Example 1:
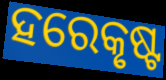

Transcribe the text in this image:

ହରେକୃଷ୍ଟ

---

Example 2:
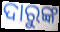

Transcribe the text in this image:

ଦାରୁଙ୍କ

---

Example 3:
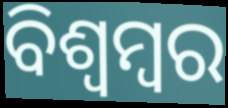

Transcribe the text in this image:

ବିଶ୍ଵମ୍ବର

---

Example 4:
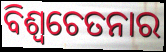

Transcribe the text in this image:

ବିଶ୍ଵଚେତନାର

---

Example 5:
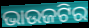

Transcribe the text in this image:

ଭାଉଜଟିର